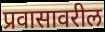
प्रवासावरील